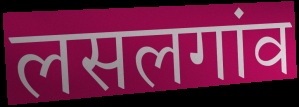
लसलगांव